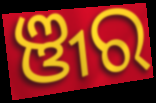
ଞ୍ଜର